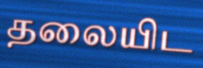
தலையிட